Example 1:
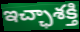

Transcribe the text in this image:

ఇచ్ఛాశక్తి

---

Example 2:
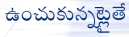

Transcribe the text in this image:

ఉంచుకున్నట్లైతే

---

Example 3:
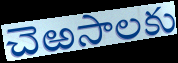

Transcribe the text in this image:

చెఱసాలకు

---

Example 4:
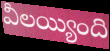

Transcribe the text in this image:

వీలయ్యింది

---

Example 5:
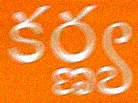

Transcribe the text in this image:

కర్ణ్య